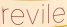
revile